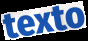
texto